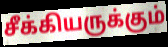
சீக்கியருக்கும்